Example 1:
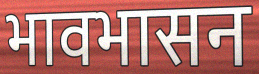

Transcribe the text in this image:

भावभासन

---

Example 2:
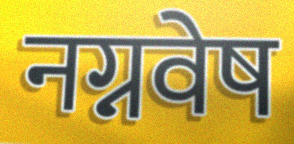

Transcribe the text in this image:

नग्नवेष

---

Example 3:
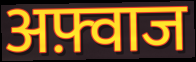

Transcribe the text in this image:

अफ़्वाज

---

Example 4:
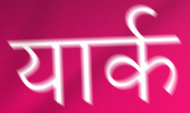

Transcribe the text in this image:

यार्क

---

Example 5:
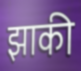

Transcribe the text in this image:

झाकी